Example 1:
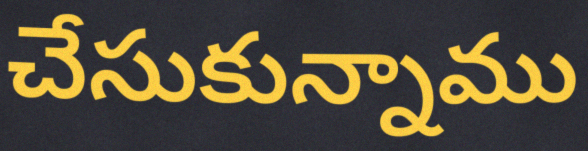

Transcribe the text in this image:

చేసుకున్నాము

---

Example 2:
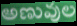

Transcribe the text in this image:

అణువుల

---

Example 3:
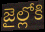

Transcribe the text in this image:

జైల్లోకి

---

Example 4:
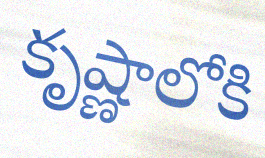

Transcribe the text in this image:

కృష్ణాలోకి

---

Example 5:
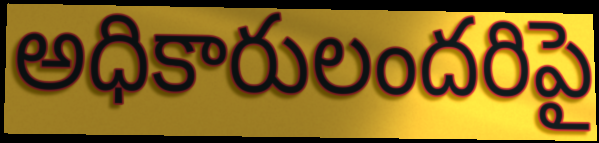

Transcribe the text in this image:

అధికారులందరిపై